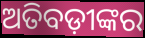
ଅତିବଡ଼ୀଙ୍କର